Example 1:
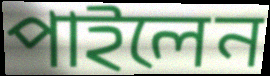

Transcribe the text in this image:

পাইলেন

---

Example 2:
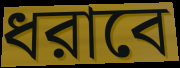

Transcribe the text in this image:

ধরাবে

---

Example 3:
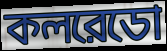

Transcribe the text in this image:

কলরেডো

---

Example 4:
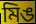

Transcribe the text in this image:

মিঙ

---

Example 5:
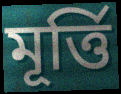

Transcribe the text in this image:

মূর্ত্তি